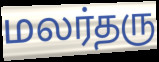
மலர்தரு